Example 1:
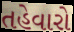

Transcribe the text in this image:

તહેવારો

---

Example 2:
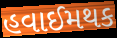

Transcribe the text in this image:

હવાઈમથક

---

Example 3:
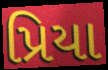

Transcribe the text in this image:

પ્રિયા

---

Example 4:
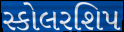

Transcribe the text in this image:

સ્કોલરશિપ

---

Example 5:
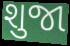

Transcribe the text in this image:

શુજા